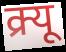
क्र्यू